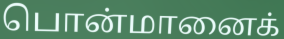
பொன்மானைக்